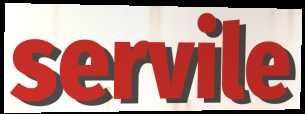
servile